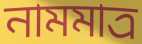
নামমাত্ৰ